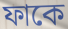
ফাকে